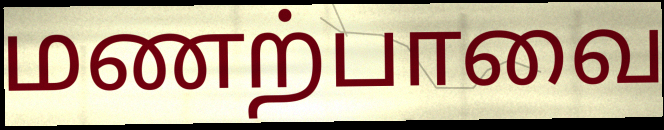
மணற்பாவை